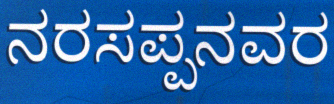
ನರಸಪ್ಪನವರ